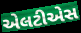
એલટીએસ